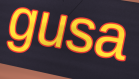
gusa